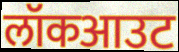
लॉकआउट